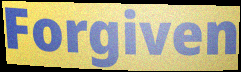
Forgiven